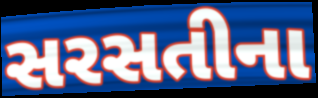
સરસતીના